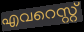
എവറെസ്റ്റ്